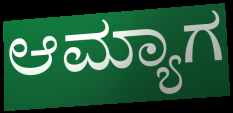
ಆಮ್ಯಾಗ